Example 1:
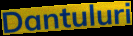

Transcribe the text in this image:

Dantuluri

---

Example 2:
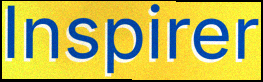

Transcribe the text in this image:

Inspirer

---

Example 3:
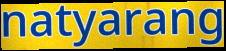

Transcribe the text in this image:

natyarang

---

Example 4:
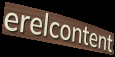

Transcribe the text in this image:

erelcontent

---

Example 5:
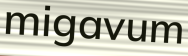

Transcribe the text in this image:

migavum